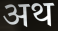
अथ